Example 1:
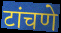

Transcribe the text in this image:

टांचणे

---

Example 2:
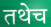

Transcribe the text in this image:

तथेच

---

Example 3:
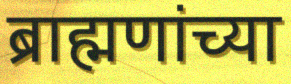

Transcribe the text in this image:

ब्राह्मणांच्या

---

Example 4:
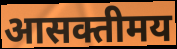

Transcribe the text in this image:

आसक्तीमय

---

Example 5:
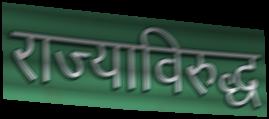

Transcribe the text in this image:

राज्याविरुद्ध